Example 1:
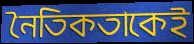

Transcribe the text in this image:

নৈতিকতাকেই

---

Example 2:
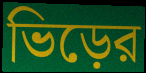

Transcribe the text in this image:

ভিড়ের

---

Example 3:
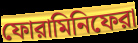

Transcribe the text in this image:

ফোরামিনিফেরা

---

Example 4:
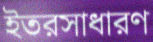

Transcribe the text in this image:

ইতরসাধারণ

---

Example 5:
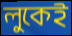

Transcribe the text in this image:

লুকেই